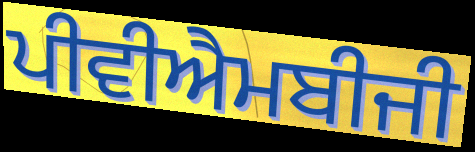
ਪੀਵੀਐਮਬੀਜੀ